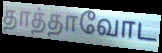
தாத்தாவோட